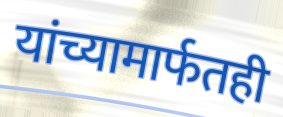
यांच्यामार्फतही